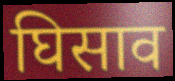
घिसाव